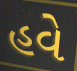
હવે